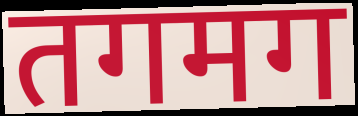
तगमग